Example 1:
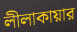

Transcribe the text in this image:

লীলাকায়ার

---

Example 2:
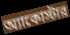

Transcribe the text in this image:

অ্যাকোস্টার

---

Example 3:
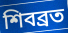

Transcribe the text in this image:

শিবব্রত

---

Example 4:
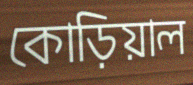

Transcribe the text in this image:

কোড়িয়াল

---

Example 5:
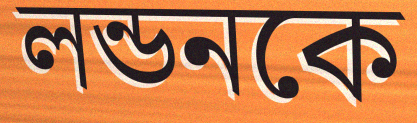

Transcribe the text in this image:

লন্ডনকে